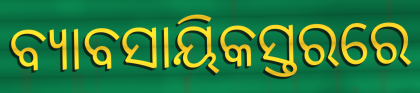
ବ୍ୟାବସାୟିକସ୍ତରରେ